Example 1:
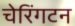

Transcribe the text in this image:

चेरिंगटन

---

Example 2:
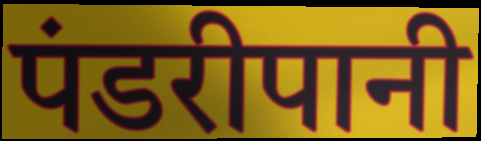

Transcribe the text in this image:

पंडरीपानी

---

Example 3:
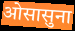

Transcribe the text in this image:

ओसासुना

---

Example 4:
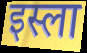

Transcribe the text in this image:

इस्ला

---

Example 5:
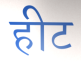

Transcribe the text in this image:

हीट